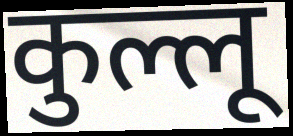
कुल्लू